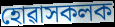
হোৱাসকলক